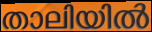
താലിയിൽ